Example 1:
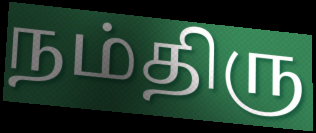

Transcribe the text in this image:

நம்திரு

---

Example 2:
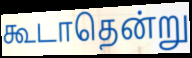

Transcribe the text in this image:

கூடாதென்று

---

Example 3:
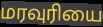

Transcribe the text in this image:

மரவுரியை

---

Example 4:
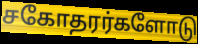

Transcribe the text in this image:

சகோதரர்களோடு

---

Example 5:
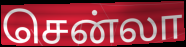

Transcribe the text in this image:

சென்லா